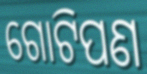
ଗୋଟିପଣ